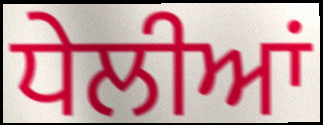
ਧੇਲੀਆਂ